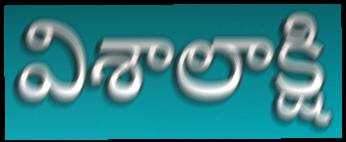
విశాలాక్షి